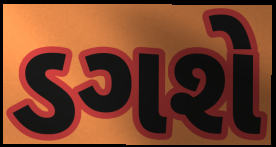
ડગશે